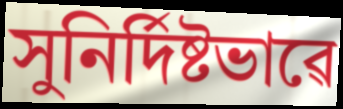
সুনিৰ্দিষ্টভাৱে